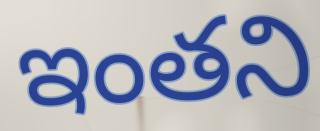
ఇంతని